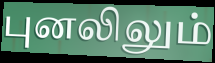
புனலிலும்